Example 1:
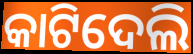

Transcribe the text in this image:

କାଟିଦେଲି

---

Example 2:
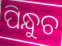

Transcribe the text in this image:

ପିନ୍ଧୁଚ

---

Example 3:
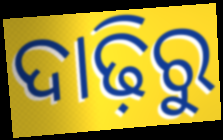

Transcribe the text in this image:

ଦାଢ଼ିରୁ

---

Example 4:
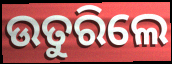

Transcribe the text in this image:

ଉତୁରିଲେ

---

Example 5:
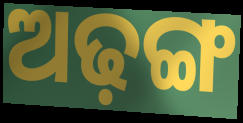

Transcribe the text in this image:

ଅଢ଼ଙ୍ଗ